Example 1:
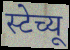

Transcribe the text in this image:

स्टेच्यू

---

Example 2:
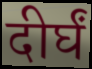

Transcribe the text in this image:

दीर्घं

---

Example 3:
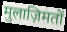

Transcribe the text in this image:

मुलाज़िमतों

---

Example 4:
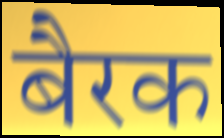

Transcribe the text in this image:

बैरक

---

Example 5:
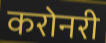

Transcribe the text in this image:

करोनरी